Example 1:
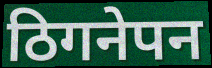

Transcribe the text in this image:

ठिगनेपन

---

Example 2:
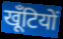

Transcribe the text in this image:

खूँटियों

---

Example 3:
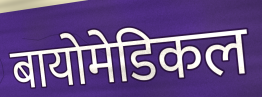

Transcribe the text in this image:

बायोमेडिकल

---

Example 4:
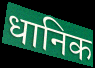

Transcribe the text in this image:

धानिक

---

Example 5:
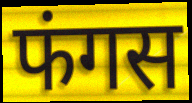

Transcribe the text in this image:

फंगस